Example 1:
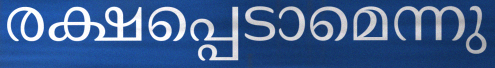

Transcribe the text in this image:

രക്ഷപ്പെടാമെന്നു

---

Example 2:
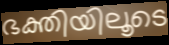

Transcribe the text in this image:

ഭക്തിയിലൂടെ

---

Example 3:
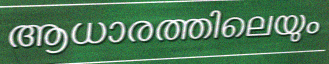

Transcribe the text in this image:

ആധാരത്തിലെയും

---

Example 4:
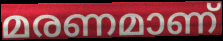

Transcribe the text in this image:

മരണമാണ്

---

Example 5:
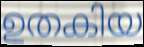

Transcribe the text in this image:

ഉതകിയ